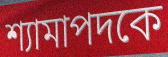
শ্যামাপদকে